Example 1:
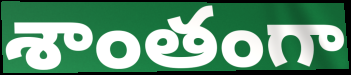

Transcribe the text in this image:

శాంతంగా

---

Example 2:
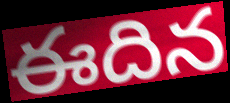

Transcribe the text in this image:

ఈదిన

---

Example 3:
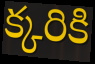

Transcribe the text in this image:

క్కరికి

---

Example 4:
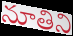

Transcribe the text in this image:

నూతిని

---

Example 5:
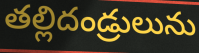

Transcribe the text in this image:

తల్లిదండ్రులును